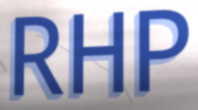
RHP